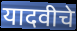
यादवीचे